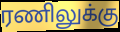
ரணிலுக்கு